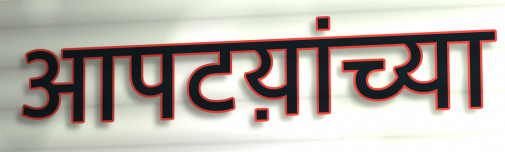
आपटय़ांच्या